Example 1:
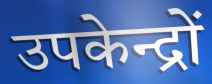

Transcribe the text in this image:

उपकेन्द्रों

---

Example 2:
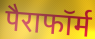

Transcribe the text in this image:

पैराफॉर्म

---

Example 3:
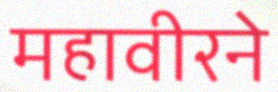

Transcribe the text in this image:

महावीरने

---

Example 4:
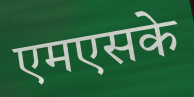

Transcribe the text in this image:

एमएसके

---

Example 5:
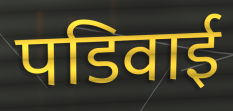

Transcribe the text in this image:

पडिवाई